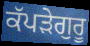
ਕੱਪੜੇਗੁਰੂ